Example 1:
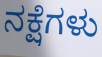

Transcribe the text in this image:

ನಕ್ಷೆಗಳು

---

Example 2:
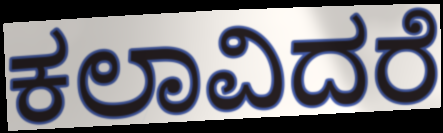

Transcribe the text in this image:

ಕಲಾವಿದರೆ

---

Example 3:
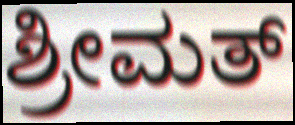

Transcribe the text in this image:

ಶ್ರೀಮತ್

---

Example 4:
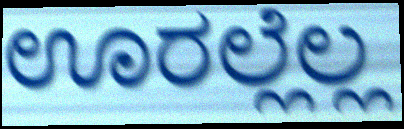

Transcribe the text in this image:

ಊರಲ್ಲೆಲ್ಲ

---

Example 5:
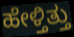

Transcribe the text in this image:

ಹೇಳ್ತಿತ್ತು